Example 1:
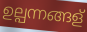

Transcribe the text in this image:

ഉല്പന്നങ്ങള്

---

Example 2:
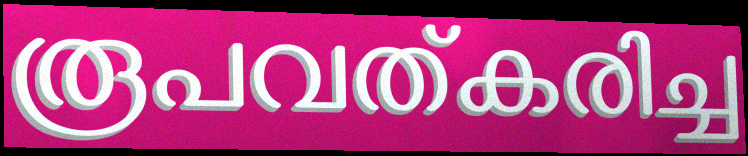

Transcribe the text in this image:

രൂപവത്കരിച്ച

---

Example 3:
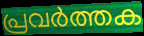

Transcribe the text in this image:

പ്രവർത്തക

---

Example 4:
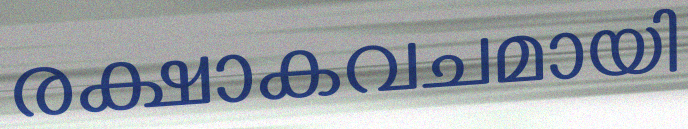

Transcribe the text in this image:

രക്ഷാകവചമായി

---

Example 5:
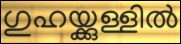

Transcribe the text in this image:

ഗുഹയ്ക്കുള്ളിൽ